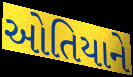
ઓતિયાને